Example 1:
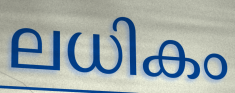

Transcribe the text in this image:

ലധികം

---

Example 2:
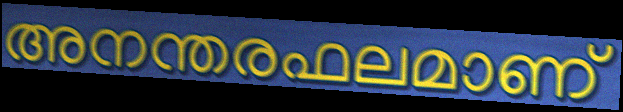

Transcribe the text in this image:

അനന്തരഫലമാണ്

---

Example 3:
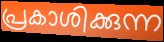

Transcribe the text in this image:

പ്രകാശിക്കുന്ന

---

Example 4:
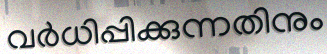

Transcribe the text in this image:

വർധിപ്പിക്കുന്നതിനും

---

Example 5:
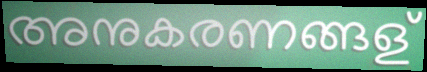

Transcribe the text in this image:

അനുകരണങ്ങള്